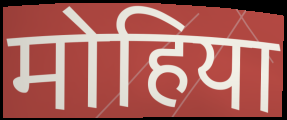
मोहिया